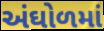
અંઘોળમાં